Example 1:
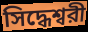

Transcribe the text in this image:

সিদ্ধেশ্বরী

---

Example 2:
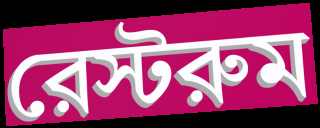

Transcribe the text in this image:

রেস্টরুম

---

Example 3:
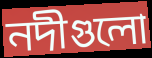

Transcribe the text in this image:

নদীগুলো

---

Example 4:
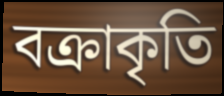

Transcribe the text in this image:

বক্রাকৃতি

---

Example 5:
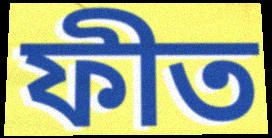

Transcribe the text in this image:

ফীত